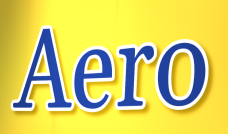
Aero